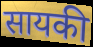
सायकी